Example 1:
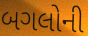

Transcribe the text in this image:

બગલોની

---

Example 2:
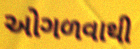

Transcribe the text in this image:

ઓગળવાથી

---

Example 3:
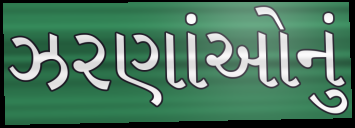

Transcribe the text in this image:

ઝરણાંઓનું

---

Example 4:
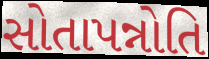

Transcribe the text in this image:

સોતાપન્નોતિ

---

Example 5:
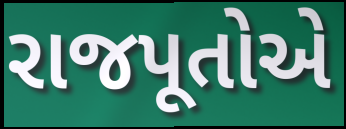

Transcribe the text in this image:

રાજપૂતોએ